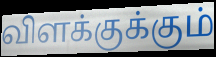
விளக்குக்கும்